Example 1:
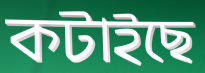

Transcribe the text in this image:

কটাইছে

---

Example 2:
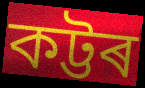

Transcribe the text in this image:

কট্টৰ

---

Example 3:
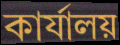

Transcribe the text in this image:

কাৰ্যালয়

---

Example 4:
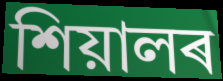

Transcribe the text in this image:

শিয়ালৰ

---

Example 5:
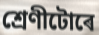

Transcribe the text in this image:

শ্ৰেণীটোৰে